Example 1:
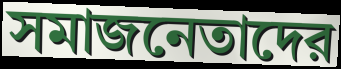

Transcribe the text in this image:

সমাজনেতাদের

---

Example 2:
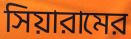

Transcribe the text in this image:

সিয়ারামের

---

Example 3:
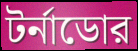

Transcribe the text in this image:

টর্নাডোর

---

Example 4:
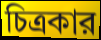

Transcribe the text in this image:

চিত্রকার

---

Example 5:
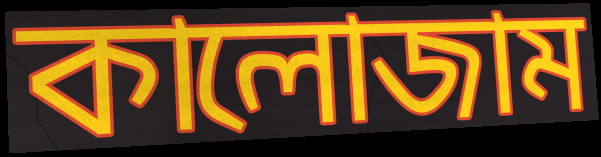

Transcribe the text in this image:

কালোজাম